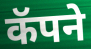
कॅपने